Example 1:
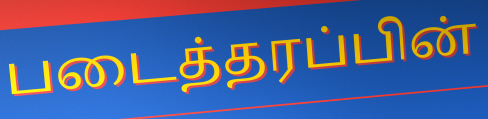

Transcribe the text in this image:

படைத்தரப்பின்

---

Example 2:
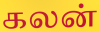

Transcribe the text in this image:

கலன்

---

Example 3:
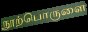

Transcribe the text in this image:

நூற்பொருளை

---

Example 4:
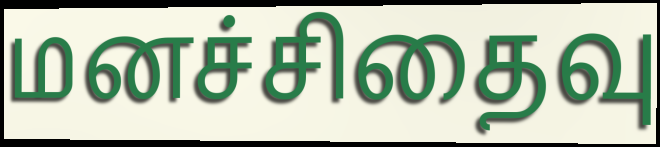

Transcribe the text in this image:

மனச்சிதைவு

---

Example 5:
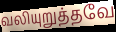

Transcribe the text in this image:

வலியுறுத்தவே